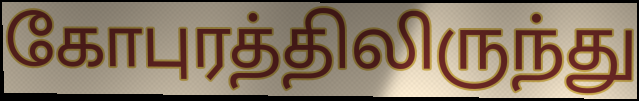
கோபுரத்திலிருந்து